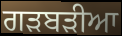
ਗੜਬੜੀਆ